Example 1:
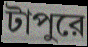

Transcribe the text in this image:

টাপুরে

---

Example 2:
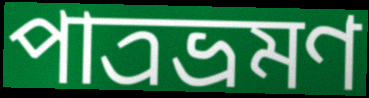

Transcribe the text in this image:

পাত্রভ্রমণ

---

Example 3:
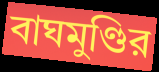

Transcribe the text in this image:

বাঘমুণ্ডির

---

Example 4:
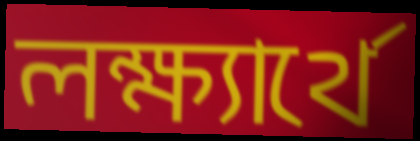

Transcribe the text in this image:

লক্ষ্যার্থে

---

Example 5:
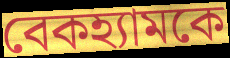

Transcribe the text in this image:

বেকহ্যামকে